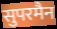
सुपरमैन